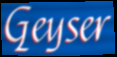
Geyser